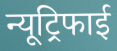
न्यूट्रिफाई